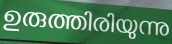
ഉരുത്തിരിയുന്നു